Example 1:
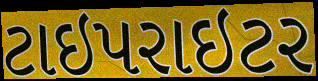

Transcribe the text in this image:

ટાઇપરાઇટર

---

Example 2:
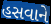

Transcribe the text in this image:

હસવાને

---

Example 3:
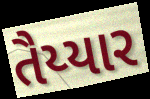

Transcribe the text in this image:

તૈય્યાર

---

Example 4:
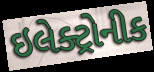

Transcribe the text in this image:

ઇલેક્ટ્રોનીક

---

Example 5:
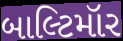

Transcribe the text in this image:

બાલ્ટિમૉર